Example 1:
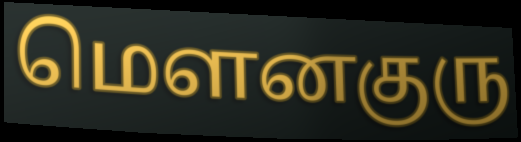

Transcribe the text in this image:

மௌனகுரு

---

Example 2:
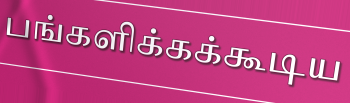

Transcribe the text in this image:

பங்களிக்கக்கூடிய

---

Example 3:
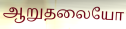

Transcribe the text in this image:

ஆறுதலையோ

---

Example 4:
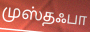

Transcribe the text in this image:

முஸ்தஃபா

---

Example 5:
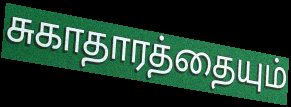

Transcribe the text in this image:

சுகாதாரத்தையும்